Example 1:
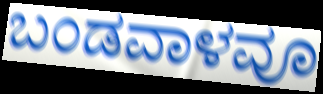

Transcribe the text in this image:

ಬಂಡವಾಳವೂ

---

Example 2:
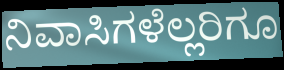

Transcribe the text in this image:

ನಿವಾಸಿಗಳೆಲ್ಲರಿಗೂ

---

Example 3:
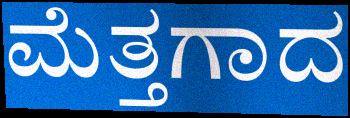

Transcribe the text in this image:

ಮೆತ್ತಗಾದ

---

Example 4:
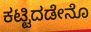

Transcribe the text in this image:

ಕಟ್ಟಿದಡೇನೊ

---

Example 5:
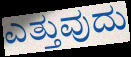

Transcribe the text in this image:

ಎತ್ತುವುದು